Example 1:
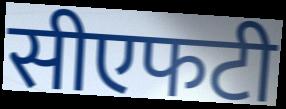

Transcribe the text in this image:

सीएफटी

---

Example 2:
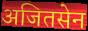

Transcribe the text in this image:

अजितसेन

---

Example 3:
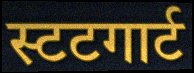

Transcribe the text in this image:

स्टटगार्ट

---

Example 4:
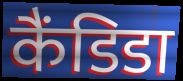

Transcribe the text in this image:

कैंडिडा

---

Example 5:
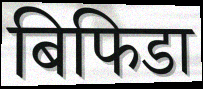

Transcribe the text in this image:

बिफिडा